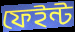
ফেইন্ট